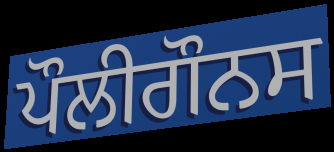
ਪੌਲੀਗੌਨਸ